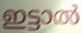
ഇട്ടാൽ